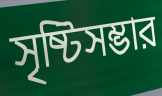
সৃষ্টিসম্ভার